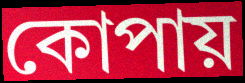
কোপায়